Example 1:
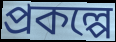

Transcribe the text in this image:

প্রকল্পে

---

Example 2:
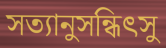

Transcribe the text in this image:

সত্যানুসন্ধিৎসু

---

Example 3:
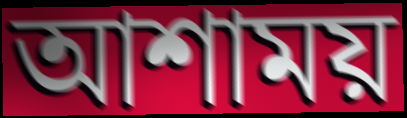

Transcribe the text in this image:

আশাময়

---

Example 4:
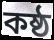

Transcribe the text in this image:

কষ্ঠ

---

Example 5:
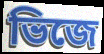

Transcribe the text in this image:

ভিজে